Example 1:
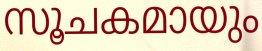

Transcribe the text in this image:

സൂചകമായും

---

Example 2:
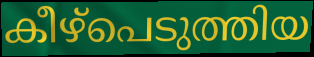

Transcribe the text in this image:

കീഴ്പെടുത്തിയ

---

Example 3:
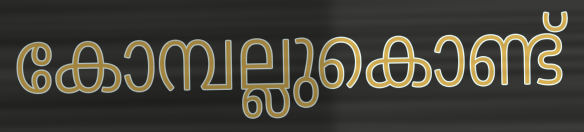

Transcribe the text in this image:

കോമ്പല്ലുകൊണ്ട്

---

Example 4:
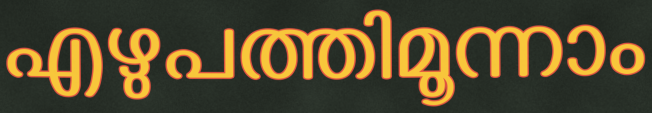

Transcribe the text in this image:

എഴുപത്തിമൂന്നാം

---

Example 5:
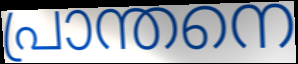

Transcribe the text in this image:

പ്രാന്തനെ